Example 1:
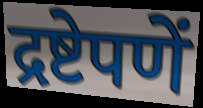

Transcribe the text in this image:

द्रष्टेपणें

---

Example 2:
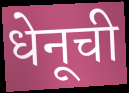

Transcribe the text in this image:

धेनूची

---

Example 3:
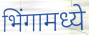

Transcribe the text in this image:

भिंगामध्ये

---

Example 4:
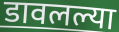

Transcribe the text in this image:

डावलल्या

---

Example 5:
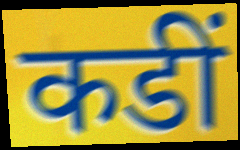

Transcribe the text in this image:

कडीं